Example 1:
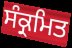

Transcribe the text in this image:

ਸੰਕ੍ਰਮਿਤ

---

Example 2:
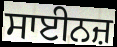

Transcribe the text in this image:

ਸਾਈਨਜ਼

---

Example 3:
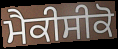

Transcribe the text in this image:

ਮੈਕੀਸੀਕੋ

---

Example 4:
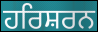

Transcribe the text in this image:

ਹਰਿਸ਼ਰਨ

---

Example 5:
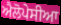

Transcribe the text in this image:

ਐਲੋਪੇਸੀਆ